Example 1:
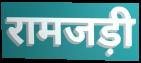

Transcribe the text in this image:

रामजड़ी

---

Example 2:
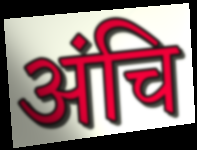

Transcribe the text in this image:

अंचि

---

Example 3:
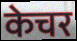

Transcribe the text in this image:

केचर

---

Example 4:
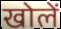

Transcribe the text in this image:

खोलें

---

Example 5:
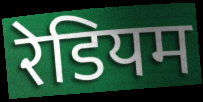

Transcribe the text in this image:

रेडियम